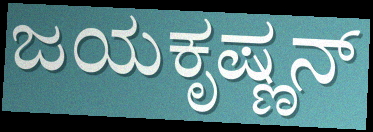
ಜಯಕೃಷ್ಣನ್